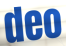
deo